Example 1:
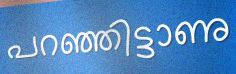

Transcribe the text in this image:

പറഞ്ഞിട്ടാണു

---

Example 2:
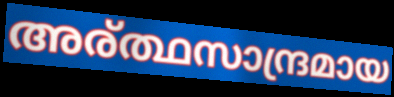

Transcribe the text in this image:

അര്ത്ഥസാന്ദ്രമായ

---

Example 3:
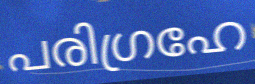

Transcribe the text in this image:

പരിഗ്രഹേ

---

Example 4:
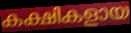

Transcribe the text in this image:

കക്ഷികളായ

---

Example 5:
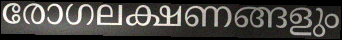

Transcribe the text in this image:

രോഗലക്ഷണങ്ങളും